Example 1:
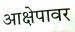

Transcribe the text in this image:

आक्षेपावर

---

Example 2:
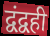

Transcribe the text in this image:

द्वंद्वही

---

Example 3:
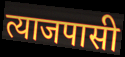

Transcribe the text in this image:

त्याजपासी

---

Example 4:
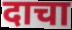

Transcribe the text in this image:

दाचा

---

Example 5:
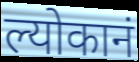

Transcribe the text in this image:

ल्योकानं